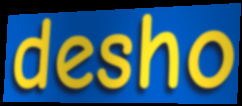
desho